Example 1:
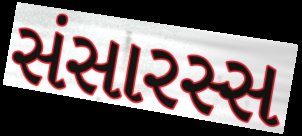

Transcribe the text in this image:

સંસારસ્સ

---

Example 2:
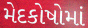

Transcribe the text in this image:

મેદકોષોમાં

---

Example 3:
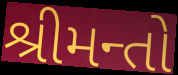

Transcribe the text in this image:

શ્રીમન્તો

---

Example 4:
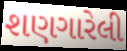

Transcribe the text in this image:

શણગારેલી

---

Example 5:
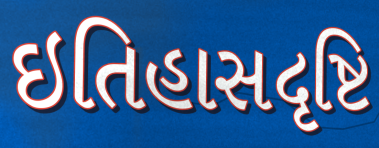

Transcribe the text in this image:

ઇતિહાસદૃષ્ટિ